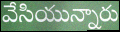
వేసియున్నారు